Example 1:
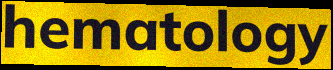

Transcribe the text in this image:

hematology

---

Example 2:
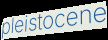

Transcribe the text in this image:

pleistocene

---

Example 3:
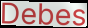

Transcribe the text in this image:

Debes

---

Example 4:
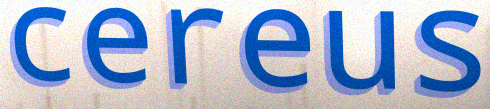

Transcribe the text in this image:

cereus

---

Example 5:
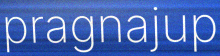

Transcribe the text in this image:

pragnajup